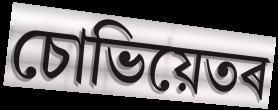
চোভিয়েতৰ